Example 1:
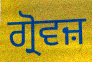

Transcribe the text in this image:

ਗ੍ਰੋਵਜ਼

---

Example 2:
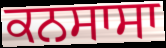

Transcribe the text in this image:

ਕਨਸਾਸਾ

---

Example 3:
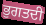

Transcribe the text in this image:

ਭੁਗਤਦੀ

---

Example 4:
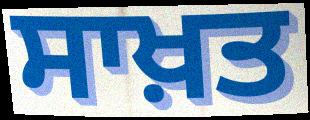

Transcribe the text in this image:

ਸਾਖ਼ਤ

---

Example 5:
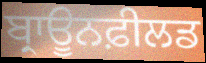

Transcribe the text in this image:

ਬ੍ਰਾਊਨਫ਼ੀਲਡ